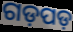
ଗଡ଼ପଡ଼